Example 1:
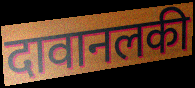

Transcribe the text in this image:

दावानलकी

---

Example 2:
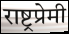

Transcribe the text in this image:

राष्ट्रप्रेमी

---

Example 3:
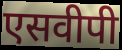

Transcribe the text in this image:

एसवीपी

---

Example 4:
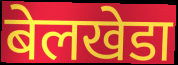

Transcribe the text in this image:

बेलखेडा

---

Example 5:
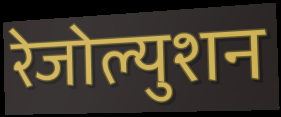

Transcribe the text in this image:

रेजोल्युशन